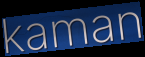
kaman